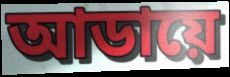
আডায়ে